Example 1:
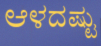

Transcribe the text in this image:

ಆಳದಷ್ಟು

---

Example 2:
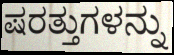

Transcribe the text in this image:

ಷರತ್ತುಗಳನ್ನು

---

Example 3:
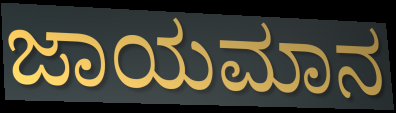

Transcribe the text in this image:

ಜಾಯಮಾನ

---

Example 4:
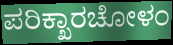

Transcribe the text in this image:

ಪರಿಕ್ಖಾರಚೋಳಂ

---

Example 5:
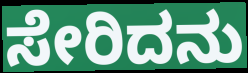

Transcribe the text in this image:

ಸೇರಿದನು